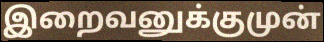
இறைவனுக்குமுன்